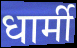
धार्मी